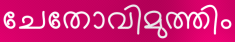
ചേതോവിമുത്തിം